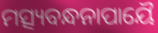
ମତ୍ସ୍ୟବନ୍ଧନାପାୟୈ